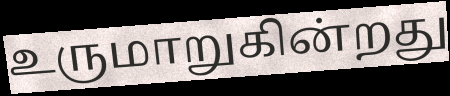
உருமாறுகின்றது